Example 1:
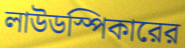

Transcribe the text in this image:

লাউডস্পিকারের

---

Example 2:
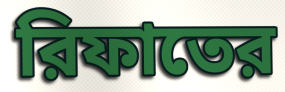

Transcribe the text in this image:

রিফাতের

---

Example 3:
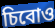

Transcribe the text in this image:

চিবোও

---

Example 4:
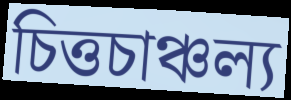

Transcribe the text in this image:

চিত্তচাঞ্চল্য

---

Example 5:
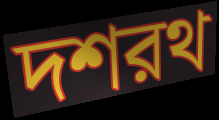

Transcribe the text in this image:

দশরথ